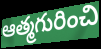
ఆత్మగురించి